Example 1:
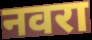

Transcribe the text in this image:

नवरा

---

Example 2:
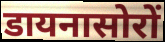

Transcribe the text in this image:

डायनासोरों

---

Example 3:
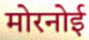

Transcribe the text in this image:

मोरनोई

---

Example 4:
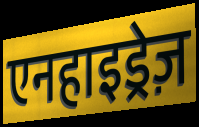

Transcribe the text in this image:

एनहाइड्रेज़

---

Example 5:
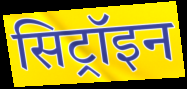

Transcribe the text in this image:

सिट्रॉइन